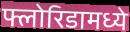
फ्लोरिडामध्ये